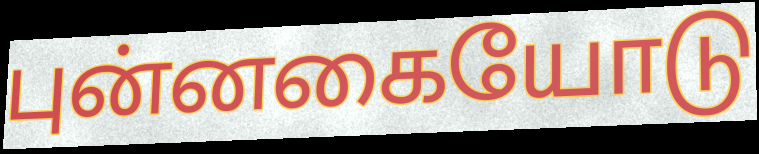
புன்னகையோடு